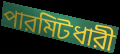
পারমিটধারী